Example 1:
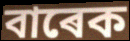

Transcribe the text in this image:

বাৰেক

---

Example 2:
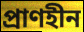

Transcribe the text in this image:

প্ৰাণহীন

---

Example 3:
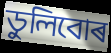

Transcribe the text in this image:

ডুলিবোৰ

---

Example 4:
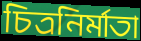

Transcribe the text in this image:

চিত্ৰনিৰ্মাতা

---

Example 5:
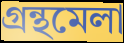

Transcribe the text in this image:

গ্ৰন্থমেলা